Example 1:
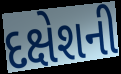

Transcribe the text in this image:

દક્ષેશની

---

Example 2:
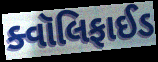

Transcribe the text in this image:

ક્વૉલિફાઈડ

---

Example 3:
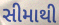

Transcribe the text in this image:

સીમાથી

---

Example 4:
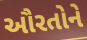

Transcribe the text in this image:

ઔરતોને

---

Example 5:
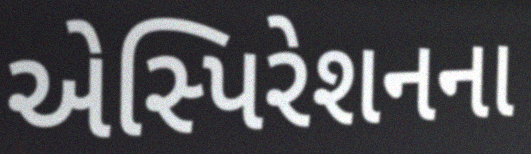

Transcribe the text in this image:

એસ્પિરેશનના